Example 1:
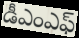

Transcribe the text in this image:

డీఎంఎఫ్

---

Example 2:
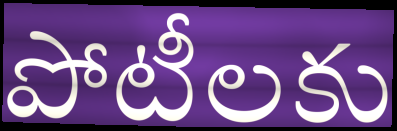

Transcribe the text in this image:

పోటీలకు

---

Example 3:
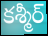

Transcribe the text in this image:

కశ్మీర్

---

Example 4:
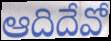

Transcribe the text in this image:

ఆదిదేవో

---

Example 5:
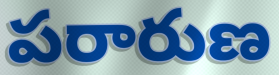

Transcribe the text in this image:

పరారుణ